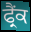
ਫ੍ਰੈਂਕ